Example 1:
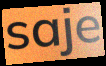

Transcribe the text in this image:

saje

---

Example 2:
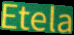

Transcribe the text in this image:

Etela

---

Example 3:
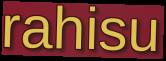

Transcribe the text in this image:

rahisu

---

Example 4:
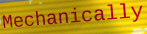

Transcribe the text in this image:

Mechanically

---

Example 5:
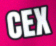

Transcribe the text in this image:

CEX